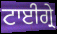
ਟਾਈਗ੍ਰੇ